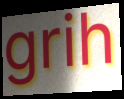
grih